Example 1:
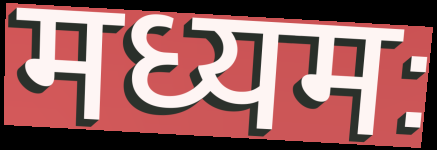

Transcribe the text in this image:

मध्यमः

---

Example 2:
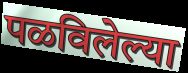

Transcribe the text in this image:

पळविलेल्या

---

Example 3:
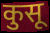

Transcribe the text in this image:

कुसू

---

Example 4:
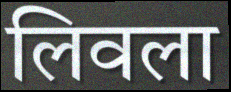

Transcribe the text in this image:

लिवला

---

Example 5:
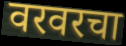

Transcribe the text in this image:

वरवरचा